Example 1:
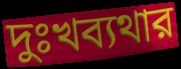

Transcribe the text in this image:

দুঃখব্যথার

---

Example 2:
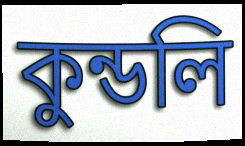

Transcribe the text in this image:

কুন্ডলি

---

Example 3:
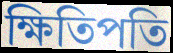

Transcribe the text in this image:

ক্ষিতিপতি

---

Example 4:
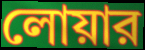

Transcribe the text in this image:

লোয়ার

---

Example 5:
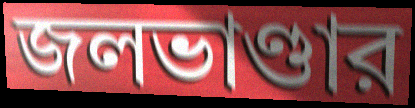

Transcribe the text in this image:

জলভাণ্ডার